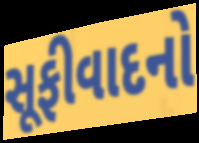
સૂફીવાદનો